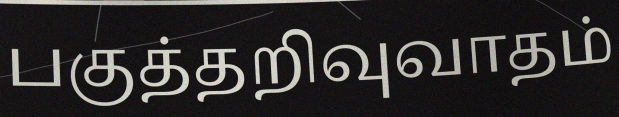
பகுத்தறிவுவாதம்